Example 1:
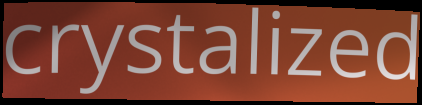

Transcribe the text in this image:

crystalized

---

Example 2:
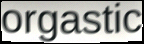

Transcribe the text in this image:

orgastic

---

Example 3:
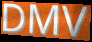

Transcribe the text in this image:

DMV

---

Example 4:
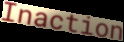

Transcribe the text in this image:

Inaction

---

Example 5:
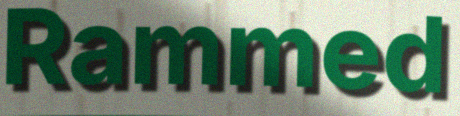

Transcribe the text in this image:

Rammed